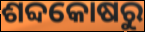
ଶବ୍ଦକୋଷରୁ